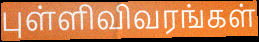
புள்ளிவிவரங்கள்